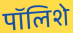
पॉलिशे